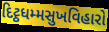
દિટ્ઠધમ્મસુખવિહારો